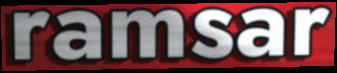
ramsar